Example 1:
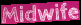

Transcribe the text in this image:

Midwife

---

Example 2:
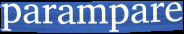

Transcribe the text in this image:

parampare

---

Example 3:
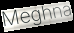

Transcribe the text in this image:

Meghna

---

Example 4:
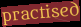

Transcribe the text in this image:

practised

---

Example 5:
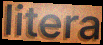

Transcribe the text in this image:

litera